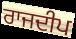
ਰਾਜਦੀਪ